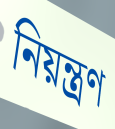
নিয়ন্ত্রণ